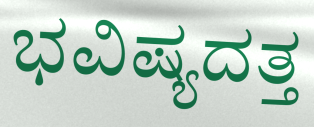
ಭವಿಷ್ಯದತ್ತ